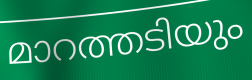
മാറത്തടിയും